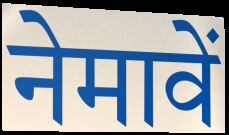
नेमावें